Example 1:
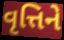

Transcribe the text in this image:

વૃત્તિને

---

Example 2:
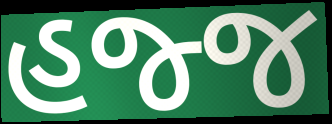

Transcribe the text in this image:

હજ્જ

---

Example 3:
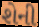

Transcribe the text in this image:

શેની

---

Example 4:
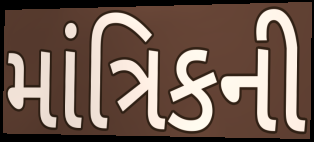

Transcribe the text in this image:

માંત્રિકની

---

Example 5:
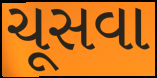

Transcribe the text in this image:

ચૂસવા